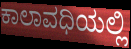
ಕಾಲಾವಧಿಯಲ್ಲಿ